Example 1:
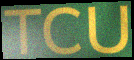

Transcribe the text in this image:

TCU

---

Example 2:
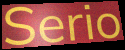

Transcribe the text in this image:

Serio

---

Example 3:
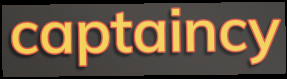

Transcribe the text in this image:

captaincy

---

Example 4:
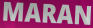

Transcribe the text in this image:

MARAN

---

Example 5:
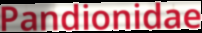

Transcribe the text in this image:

Pandionidae